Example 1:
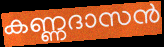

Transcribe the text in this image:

കണ്ണദാസൻ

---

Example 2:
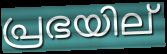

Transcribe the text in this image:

പ്രഭയില്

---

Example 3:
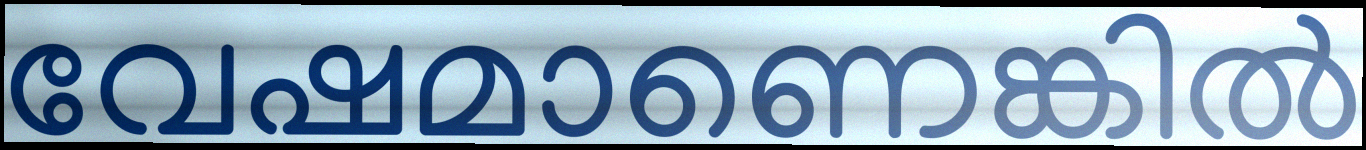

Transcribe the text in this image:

വേഷമാണെങ്കിൽ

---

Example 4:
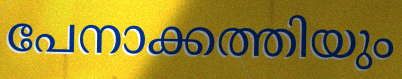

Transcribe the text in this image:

പേനാക്കത്തിയും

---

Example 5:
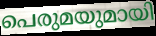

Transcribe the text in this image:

പെരുമയുമായി